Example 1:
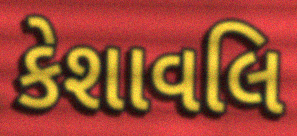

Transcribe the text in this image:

કેશાવલિ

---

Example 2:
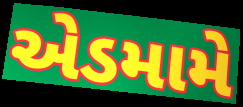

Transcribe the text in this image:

એડમામે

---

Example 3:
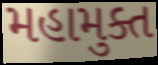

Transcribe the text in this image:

મહામુક્ત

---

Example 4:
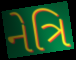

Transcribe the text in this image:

નેત્રિ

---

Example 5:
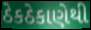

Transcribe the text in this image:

ઠેકઠેકાણેથી